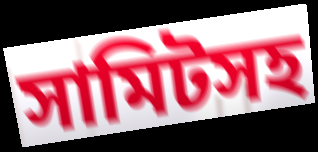
সামিটসহ